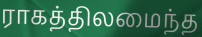
ராகத்திலமைந்த